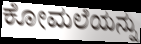
ಕೋಮಲೆಯನ್ನು